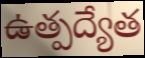
ఉత్పద్యేత